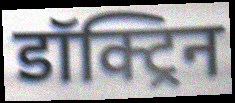
डॉक्ट्रिन